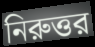
নিরুত্তর